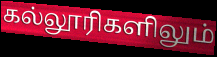
கல்லூரிகளிலும்